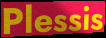
Plessis